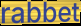
rabbet